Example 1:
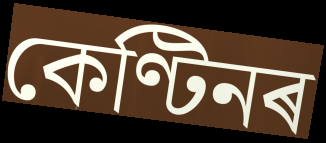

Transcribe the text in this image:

কেণ্টিনৰ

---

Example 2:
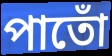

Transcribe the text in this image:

পাতোঁ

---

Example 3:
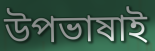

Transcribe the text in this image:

উপভাষাই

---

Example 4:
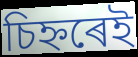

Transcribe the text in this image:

চিহ্নৰেই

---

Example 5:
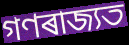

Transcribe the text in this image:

গণৰাজ্যত